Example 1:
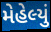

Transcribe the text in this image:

મેહેલ્યું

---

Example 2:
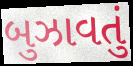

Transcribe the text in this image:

બુઝાવતું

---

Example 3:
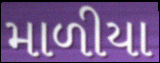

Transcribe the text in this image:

માળીયા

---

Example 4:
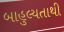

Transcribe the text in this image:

બાહુલ્યતાથી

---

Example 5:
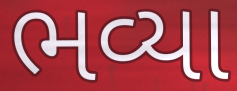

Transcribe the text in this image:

ભવ્યા